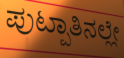
ಪುಟ್ಪಾತಿನಲ್ಲೇ